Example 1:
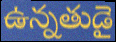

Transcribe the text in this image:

ఉన్నతుడై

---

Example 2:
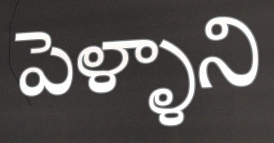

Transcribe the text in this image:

పెళ్ళాని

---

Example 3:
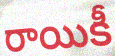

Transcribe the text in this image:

రాయికీ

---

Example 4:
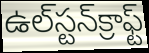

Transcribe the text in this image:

ఉల్‌స్టన్‌క్రాఫ్ట్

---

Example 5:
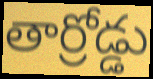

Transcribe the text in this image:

తార్రోడ్డు